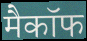
मैकॉफ